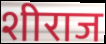
शीराज